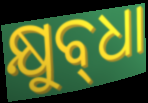
କ୍ଷୁବ୍‌ଧା